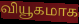
வியூகமாக